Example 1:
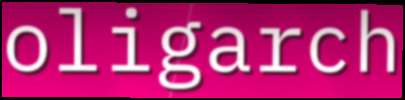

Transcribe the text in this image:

oligarch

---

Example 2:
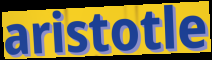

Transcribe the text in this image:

aristotle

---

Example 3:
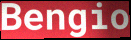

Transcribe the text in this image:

Bengio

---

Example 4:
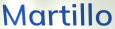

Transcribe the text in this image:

Martillo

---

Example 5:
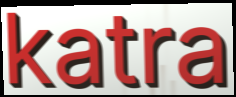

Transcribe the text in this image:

katra